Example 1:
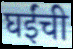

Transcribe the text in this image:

घईंची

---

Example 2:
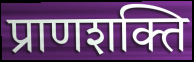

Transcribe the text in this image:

प्राणशक्ति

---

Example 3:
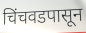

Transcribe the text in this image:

चिंचवडपासून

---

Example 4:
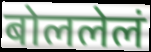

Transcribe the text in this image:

बोललेलं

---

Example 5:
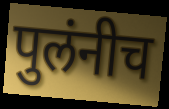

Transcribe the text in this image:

पुलंनीच